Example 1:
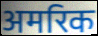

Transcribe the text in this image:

अमरिक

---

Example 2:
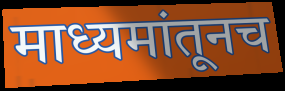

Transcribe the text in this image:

माध्यमांतूनच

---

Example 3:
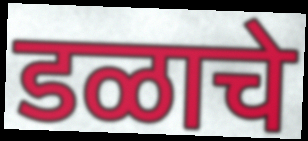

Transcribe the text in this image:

डळाचे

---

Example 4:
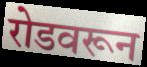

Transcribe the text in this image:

रोडवरून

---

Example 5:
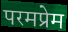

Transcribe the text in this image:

परमप्रेम